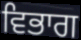
ਵਿਭਾਗ